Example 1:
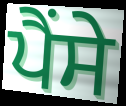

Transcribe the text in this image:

ਪੈਂਸੇ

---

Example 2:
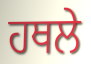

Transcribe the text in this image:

ਹਥਲੇ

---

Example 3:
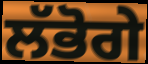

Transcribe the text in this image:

ਲੱਭੋਗੇ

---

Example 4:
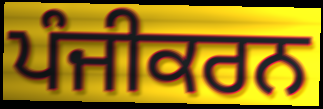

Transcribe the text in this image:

ਪੰਜੀਕਰਨ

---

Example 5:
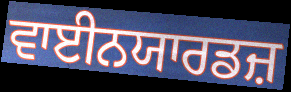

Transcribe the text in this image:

ਵਾਈਨਯਾਰਡਜ਼